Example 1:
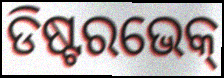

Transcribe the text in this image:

ଡିଷ୍ଟରଭେକ୍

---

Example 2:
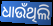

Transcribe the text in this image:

ଧାଉଁଥିଲି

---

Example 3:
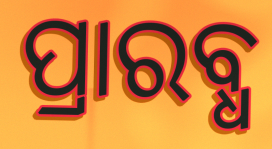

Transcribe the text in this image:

ପ୍ରାରବ୍ଧ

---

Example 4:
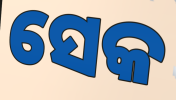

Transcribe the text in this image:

ସେକ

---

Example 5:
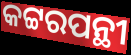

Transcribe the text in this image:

କଟ୍ଟରପନ୍ଥୀ